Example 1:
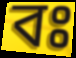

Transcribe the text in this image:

বঃ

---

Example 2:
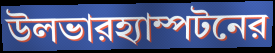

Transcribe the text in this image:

উলভারহ্যাম্পটনের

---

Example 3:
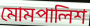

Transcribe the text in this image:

মোমপালিশ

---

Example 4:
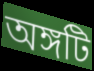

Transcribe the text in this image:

অঙ্গটি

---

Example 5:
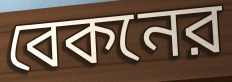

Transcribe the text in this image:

বেকনের